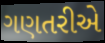
ગણતરીએ